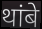
थांबे